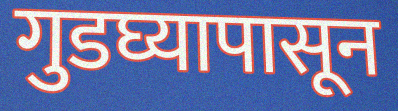
गुडघ्यापासून